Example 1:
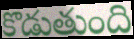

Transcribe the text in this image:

కొడుతుంది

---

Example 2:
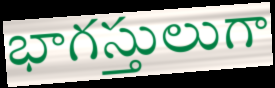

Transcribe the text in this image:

భాగస్తులుగా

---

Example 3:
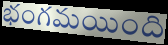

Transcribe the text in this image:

భంగమయింది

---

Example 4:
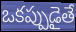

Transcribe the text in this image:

ఒకప్పుడైతే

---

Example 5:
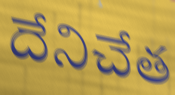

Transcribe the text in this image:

దేనిచేత